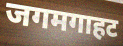
जगमगाहट